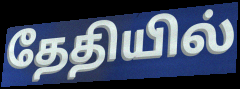
தேதியில்